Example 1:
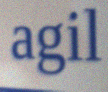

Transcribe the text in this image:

agil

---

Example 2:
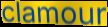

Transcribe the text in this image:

clamour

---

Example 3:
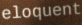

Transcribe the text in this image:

eloquent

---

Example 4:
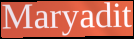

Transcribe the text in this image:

Maryadit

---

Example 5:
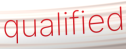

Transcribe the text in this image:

qualified